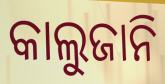
କାଲୁଜାନି